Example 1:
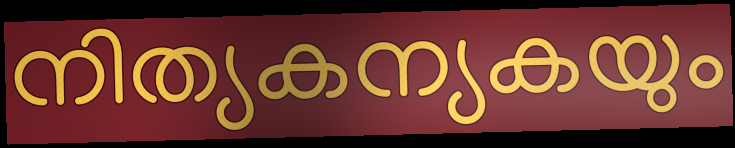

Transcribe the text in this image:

നിത്യകന്യകയും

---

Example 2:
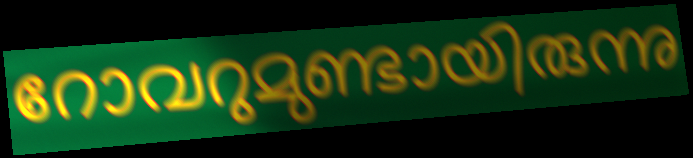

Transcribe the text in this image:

റോവറുമുണ്ടായിരുന്നു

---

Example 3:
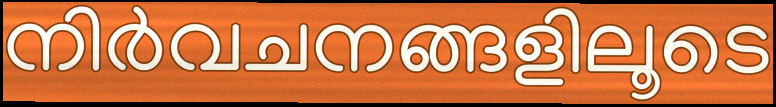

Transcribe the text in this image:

നിർവചനങ്ങളിലൂടെ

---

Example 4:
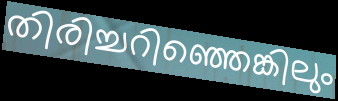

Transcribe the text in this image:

തിരിച്ചറിഞ്ഞെങ്കിലും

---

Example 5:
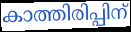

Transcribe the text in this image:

കാത്തിരിപ്പിന്